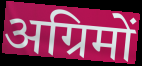
अग्रिमों